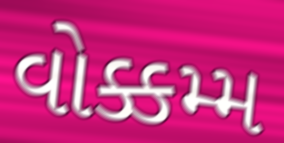
વોક્કમ્મ